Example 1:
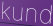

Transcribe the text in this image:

kund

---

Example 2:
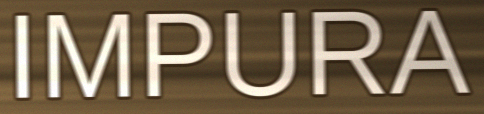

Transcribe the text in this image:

IMPURA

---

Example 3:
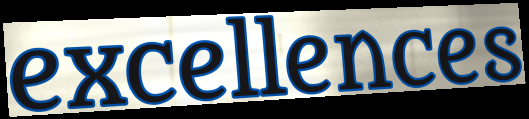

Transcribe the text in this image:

excellences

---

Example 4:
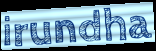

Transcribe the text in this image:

irundha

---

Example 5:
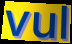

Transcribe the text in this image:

vul